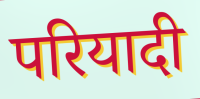
परियादी